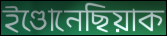
ইণ্ডোনেছিয়াক